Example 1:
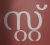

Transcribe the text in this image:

സ്റ്റ്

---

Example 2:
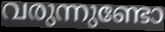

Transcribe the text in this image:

വരുന്നുണ്ടോ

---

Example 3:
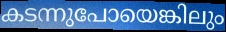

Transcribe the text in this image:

കടന്നുപോയെങ്കിലും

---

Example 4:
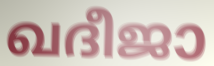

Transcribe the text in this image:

ഖദീജാ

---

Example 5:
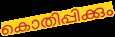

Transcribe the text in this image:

കൊതിപ്പിക്കും